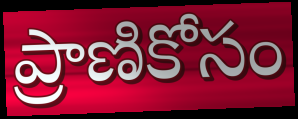
ప్రాణికోసం